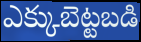
ఎక్కుబెట్టబడి